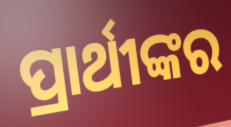
ପ୍ରାର୍ଥୀଙ୍କର